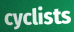
cyclists